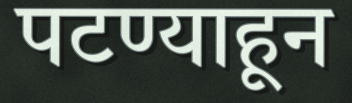
पटण्याहून